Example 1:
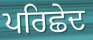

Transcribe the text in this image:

ਪਰਿਛੇਦ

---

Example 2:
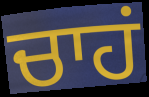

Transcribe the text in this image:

ਚਾਹਂ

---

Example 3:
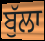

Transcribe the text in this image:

ਬੁੱਲਾ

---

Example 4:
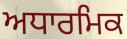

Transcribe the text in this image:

ਅਧਾਰਮਿਕ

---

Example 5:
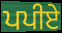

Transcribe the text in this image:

ਪਪੀਏ